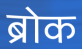
ब्रोक